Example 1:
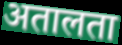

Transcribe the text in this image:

अतालता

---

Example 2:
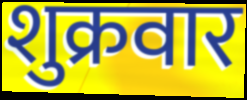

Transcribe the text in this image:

शुक्रवार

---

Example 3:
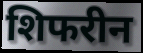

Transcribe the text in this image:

शिफरीन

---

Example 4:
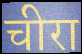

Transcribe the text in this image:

चीरा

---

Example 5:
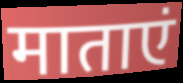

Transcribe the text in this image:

माताएं